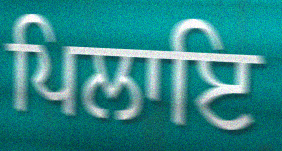
ਪਿਲਾਇ